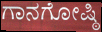
ಗಾನಗೋಷ್ಠಿ